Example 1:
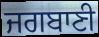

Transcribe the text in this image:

ਜਗਬਾਣੀ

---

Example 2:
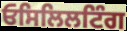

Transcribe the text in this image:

ਓਸਿਲਿਲਟਿੰਗ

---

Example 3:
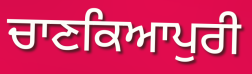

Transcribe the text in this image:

ਚਾਣਕਿਆਪੁਰੀ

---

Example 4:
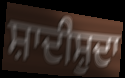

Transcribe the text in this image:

ਸ਼ਾਦੀਸ਼ੁਦਾ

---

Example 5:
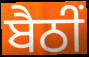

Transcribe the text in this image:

ਬੈਠੀਂ